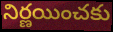
నిర్ణయించకు